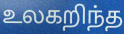
உலகறிந்த